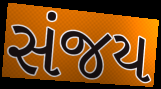
સંજય